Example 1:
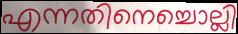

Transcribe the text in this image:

എന്നതിനെച്ചൊല്ലി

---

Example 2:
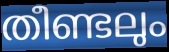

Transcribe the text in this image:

തീണ്ടലും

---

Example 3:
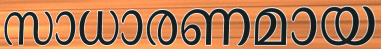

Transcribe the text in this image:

സാധാരണമായ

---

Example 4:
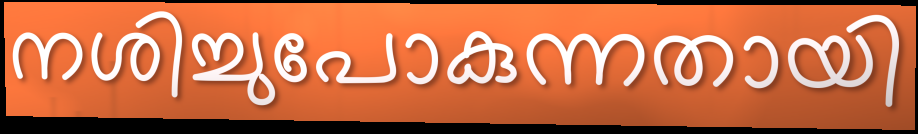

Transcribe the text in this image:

നശിച്ചുപോകുന്നതായി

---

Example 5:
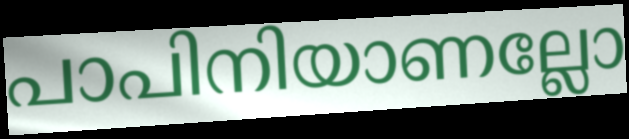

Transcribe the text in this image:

പാപിനിയാണല്ലോ